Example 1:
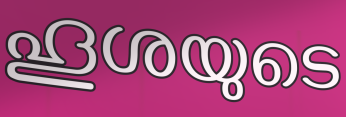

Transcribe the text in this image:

ഹൂശയുടെ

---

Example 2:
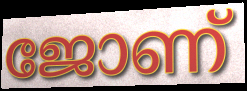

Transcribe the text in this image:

ജോണ്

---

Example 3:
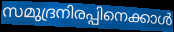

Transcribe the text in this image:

സമുദ്രനിരപ്പിനെക്കാൾ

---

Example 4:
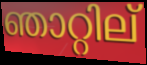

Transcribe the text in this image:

ഞാറ്റില്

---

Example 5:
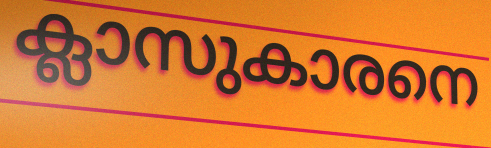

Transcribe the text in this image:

ക്ലാസുകാരനെ